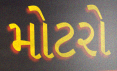
મોટરો